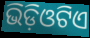
ଭିଡ଼ିଓଟିଏ